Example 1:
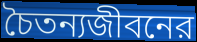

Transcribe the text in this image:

চৈতন্যজীবনের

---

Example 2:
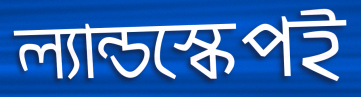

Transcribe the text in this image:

ল্যান্ডস্কেপই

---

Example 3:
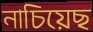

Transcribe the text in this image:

নাচিয়েছ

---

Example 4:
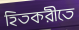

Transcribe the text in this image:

হিতকরীতে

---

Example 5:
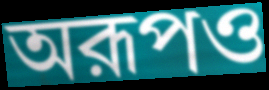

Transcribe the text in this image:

অরূপও